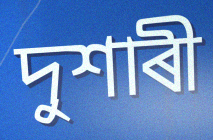
দুশাৰী